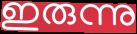
ഇരുന്നു